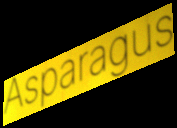
Asparagus